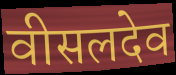
वीसलदेव